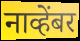
नाव्हेंबर